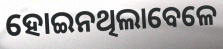
ହୋଇନଥିଲାବେଳେ